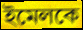
ইমেলকে